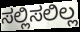
ಸಲ್ಲಿಸಲಿಲ್ಲ